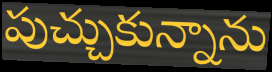
పుచ్చుకున్నాను